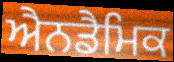
ਐਨਡੈਮਿਕ